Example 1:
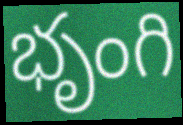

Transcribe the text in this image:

భృంగి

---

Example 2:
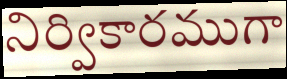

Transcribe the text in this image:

నిర్వికారముగా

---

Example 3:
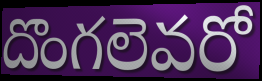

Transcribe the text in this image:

దొంగలెవరో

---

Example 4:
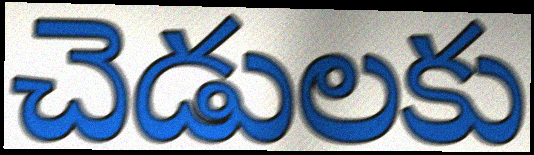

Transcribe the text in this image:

చెడులకు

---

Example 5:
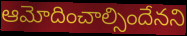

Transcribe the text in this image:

ఆమోదించాల్సిందేనని